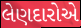
લેણદારોએ